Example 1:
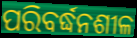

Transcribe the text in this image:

ପରିବର୍ଦ୍ଧନଶୀଳ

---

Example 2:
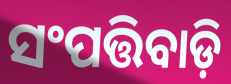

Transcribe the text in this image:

ସଂପତ୍ତିବାଡ଼ି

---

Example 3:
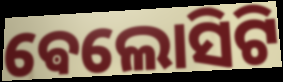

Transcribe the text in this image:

ଵେଲୋସିଟି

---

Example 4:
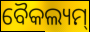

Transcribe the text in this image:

ବୈକଲ୍ୟମ୍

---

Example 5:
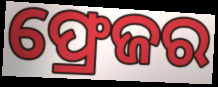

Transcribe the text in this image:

ଫ୍ରେଜର